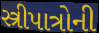
સ્ત્રીપાત્રોની